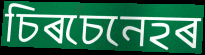
চিৰচেনেহৰ